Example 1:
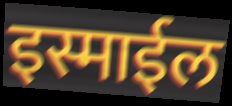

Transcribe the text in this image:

इस्माईल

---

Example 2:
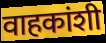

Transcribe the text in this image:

वाहकांशी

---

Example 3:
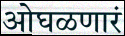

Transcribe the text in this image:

ओघळणारं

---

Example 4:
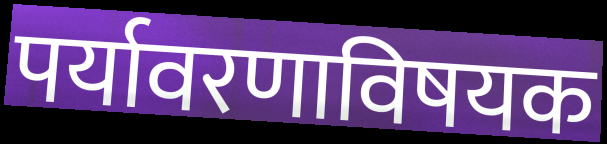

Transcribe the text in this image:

पर्यावरणाविषयक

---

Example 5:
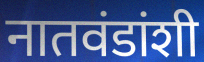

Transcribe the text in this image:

नातवंडांशी